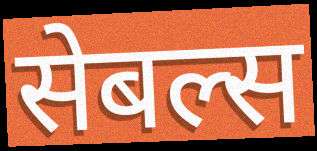
सेबल्स